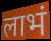
लाभं